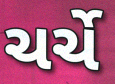
ચર્ચે